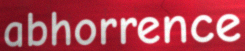
abhorrence